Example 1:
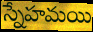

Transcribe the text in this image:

స్నేహమయి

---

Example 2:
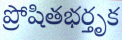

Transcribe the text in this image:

ప్రోషితభర్తృక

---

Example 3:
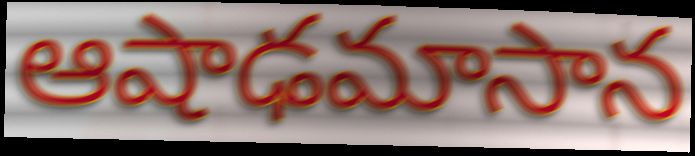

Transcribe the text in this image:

ఆషాఢమాసాన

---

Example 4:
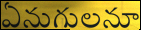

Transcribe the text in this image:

ఏనుగులనూ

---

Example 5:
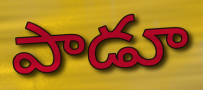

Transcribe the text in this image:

పాడూ